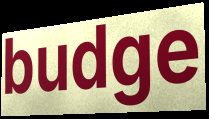
budge